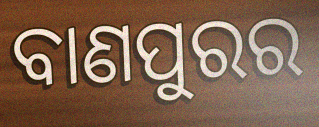
ବାଣପୁରର